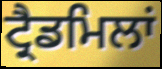
ਟ੍ਰੈਡਮਿਲਾਂ